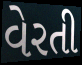
વેરતી